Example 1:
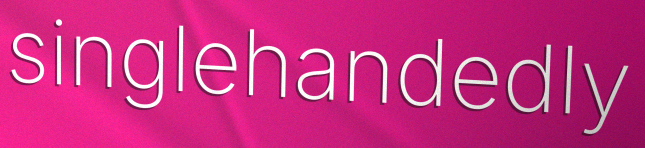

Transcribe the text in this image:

singlehandedly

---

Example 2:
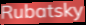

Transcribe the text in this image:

Rubatsky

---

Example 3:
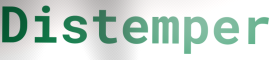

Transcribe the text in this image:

Distemper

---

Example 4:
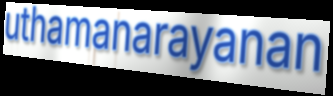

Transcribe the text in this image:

uthamanarayanan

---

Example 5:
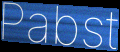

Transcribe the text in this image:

Pabst